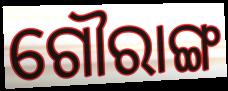
ଗୌରାଙ୍ଗ